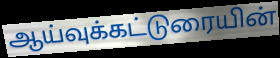
ஆய்வுக்கட்டுரையின்